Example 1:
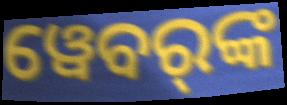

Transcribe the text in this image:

ୱେବର୍‌ଙ୍କ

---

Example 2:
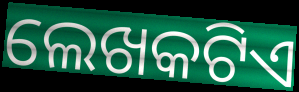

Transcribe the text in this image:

ଲେଖକଟିଏ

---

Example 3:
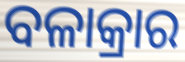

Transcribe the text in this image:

ବଳାକ୍ରାର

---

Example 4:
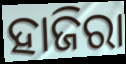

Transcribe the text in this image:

ହାଜିରା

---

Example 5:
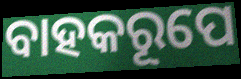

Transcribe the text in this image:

ବାହକରୂପେ